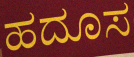
ಹದೂಸ